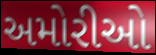
અમોરીઓ